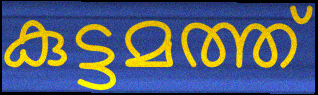
കുട്ടമത്ത്